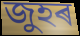
জুহৰ